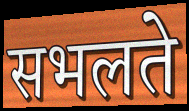
सभलते